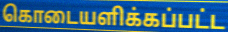
கொடையளிக்கப்பட்ட